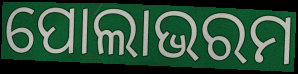
ପୋଲାଭରମ